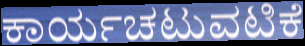
ಕಾರ್ಯಚಟುವಟಿಕೆ